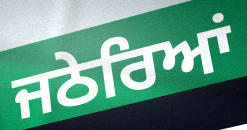
ਜਠੇਰਿਆਂ